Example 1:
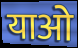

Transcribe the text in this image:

याओ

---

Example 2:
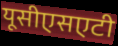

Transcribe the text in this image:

यूसीएसएटी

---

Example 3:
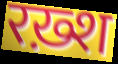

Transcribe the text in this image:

रख़्श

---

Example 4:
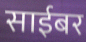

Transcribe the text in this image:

साईबर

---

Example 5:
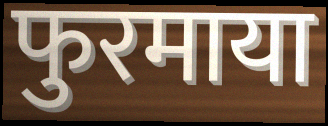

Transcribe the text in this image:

फुरमाया